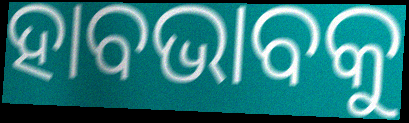
ହାବଭାବକୁ